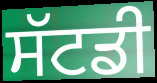
ਸੱਟਡੀ